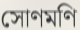
সোণমণি